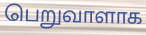
பெறுவாளாக